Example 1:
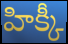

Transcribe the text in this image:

హిక్కీ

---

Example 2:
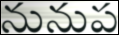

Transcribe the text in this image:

నునుప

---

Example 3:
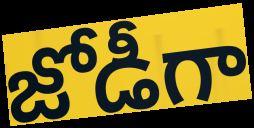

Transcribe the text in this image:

జోడీగా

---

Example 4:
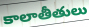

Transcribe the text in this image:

కాలాతీతులు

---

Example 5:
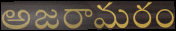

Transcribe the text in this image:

అజరామరం